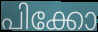
പിക്കോ